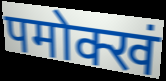
पमोक्खं